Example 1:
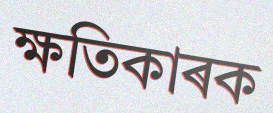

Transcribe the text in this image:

ক্ষতিকাৰক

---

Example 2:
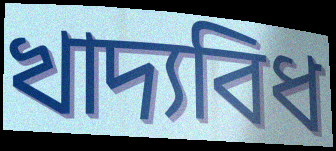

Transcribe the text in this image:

খাদ্যবিধ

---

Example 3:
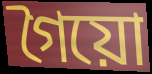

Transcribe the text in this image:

গৈয়ো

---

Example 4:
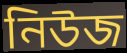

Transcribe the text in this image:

নিউজ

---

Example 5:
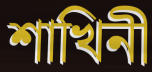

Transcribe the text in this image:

শাখিনী